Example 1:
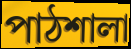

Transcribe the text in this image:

পাঠশালা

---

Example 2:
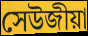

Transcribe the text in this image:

সেউজীয়া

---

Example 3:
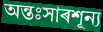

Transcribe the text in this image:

অন্তঃসাৰশূন্য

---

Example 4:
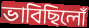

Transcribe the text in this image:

ভাবিছিলোঁ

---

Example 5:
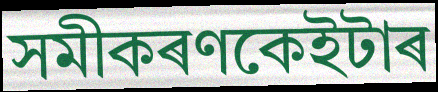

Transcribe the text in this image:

সমীকৰণকেইটাৰ